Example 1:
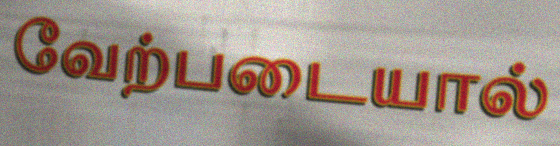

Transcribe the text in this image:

வேற்படையால்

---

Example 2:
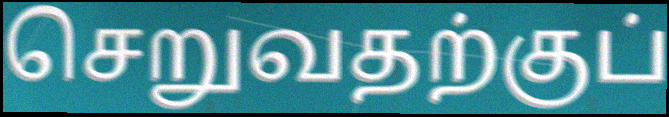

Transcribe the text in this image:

செறுவதற்குப்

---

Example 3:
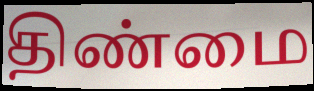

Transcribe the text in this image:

திண்மை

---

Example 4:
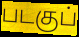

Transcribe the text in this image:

படகுப்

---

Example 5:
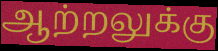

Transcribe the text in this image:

ஆற்றலுக்கு